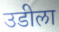
उडीला